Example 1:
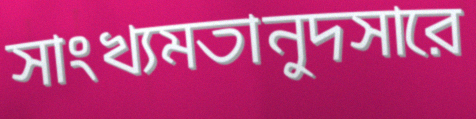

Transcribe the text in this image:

সাংখ্যমতানুদসারে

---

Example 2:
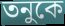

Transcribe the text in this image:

তনুকে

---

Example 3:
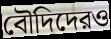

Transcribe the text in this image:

বৌদিদেরও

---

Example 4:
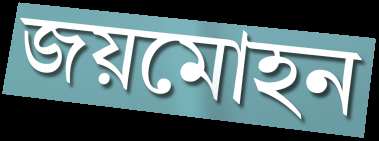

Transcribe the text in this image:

জয়মোহন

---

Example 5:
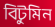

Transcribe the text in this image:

বিটুমিন